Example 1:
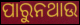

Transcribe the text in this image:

ପାରୁନଥାଉ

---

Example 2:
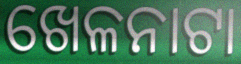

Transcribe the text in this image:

ଖେଳନାଟା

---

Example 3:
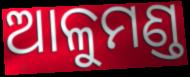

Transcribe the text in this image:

ଆଳୁମଣ୍ଡ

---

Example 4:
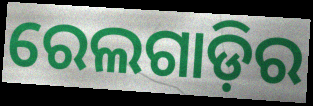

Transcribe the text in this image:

ରେଲଗାଡ଼ିର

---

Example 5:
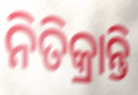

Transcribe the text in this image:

ନିତିକ୍ରାନ୍ତି